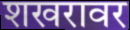
शखरावर